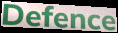
Defence